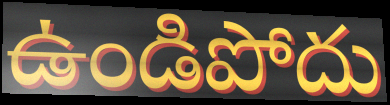
ఉండిపోదు